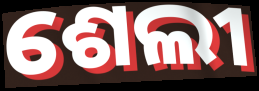
ଶେଲୀ